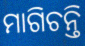
ମାଗିଚନ୍ତି